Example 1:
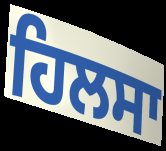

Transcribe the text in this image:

ਹਿਲਸਾ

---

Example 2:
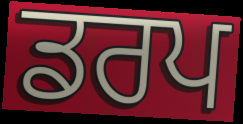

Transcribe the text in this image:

ਡਰਪ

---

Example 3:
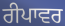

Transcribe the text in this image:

ਰੀਪਾਵਰ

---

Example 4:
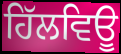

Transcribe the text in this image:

ਹਿੱਲਵਿਊ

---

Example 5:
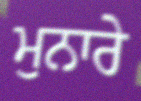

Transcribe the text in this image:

ਮੁਨਾਰੇ